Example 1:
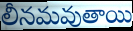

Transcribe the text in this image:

లీనమవుతాయి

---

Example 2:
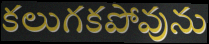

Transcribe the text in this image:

కలుగకపోవును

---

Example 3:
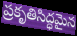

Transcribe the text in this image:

ప్రకృతిసిద్ధమైన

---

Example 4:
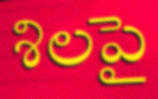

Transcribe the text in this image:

శిలపై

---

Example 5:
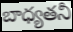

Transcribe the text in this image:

బాధ్యతనీ